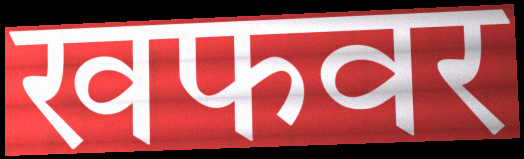
खफवर